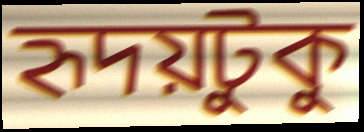
হৃদয়টুকু